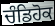
ਚੰਡਿਹੋਕ